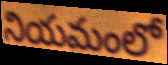
నియమంలో